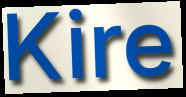
Kire